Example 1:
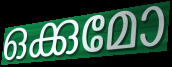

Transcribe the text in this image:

ഒക്കുമോ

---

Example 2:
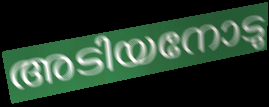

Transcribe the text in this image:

അടിയനോടു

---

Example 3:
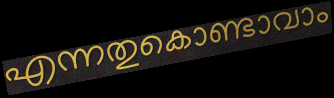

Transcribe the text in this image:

എന്നതുകൊണ്ടാവാം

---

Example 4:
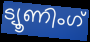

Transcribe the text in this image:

ട്യൂണിംഗ്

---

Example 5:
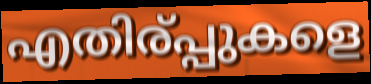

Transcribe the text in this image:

എതിര്പ്പുകളെ